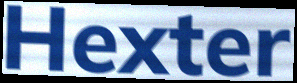
Hexter